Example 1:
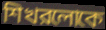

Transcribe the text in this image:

শিখরলোকে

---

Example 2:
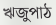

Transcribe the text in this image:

ঋজুপাঠ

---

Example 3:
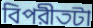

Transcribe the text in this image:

বিপরীতটা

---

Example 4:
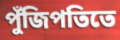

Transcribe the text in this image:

পুঁজিপতিতে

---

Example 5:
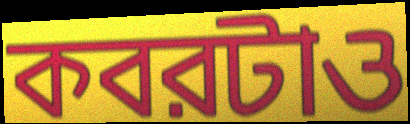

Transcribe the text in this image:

কবরটাও